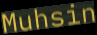
Muhsin